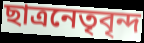
ছাত্রনেতৃবৃন্দ